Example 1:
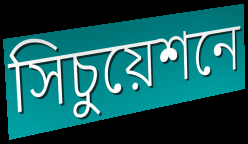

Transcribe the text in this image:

সিচুয়েশনে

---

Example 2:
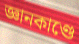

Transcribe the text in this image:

জ্ঞানকাণ্ডে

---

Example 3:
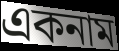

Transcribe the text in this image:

একনাম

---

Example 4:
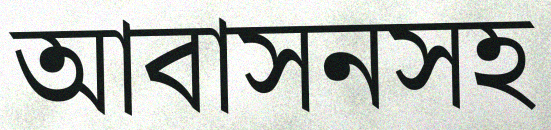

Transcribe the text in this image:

আবাসনসহ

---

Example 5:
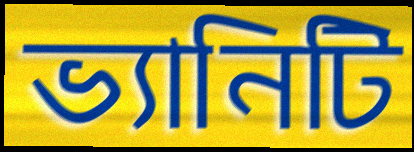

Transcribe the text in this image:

ভ্যানিটি